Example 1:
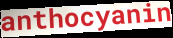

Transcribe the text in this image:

anthocyanin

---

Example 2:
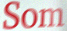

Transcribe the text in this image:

Som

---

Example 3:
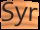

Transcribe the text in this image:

Syr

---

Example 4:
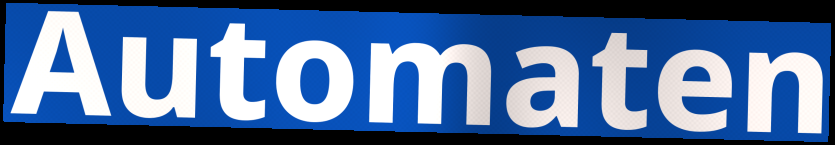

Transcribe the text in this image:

Automaten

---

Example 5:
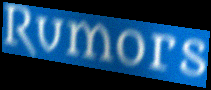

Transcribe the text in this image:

Rumors